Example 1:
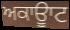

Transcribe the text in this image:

ਅਕਾਊਾਟ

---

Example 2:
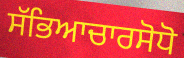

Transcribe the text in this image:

ਸੱਭਿਆਚਾਰਸੋਧੋ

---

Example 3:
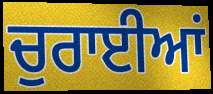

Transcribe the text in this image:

ਚੁਰਾਈਆਂ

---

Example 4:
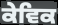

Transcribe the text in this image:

ਕੇਵਿਕ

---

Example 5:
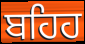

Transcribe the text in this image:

ਬਹਿਹ